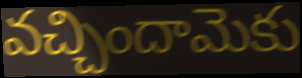
వచ్చిందామెకు